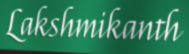
Lakshmikanth